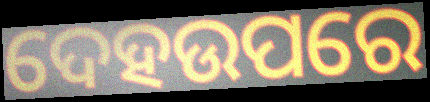
ଦେହଉପରେ